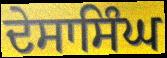
ਦੇਸਾਸਿੰਘ